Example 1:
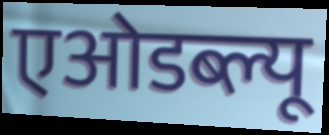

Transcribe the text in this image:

एओडब्ल्यू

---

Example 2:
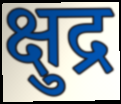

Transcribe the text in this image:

क्षुद्र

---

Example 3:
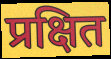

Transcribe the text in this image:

प्रक्षित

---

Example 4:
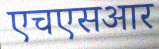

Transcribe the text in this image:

एचएसआर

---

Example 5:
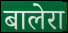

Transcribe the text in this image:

बालेरा